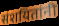
संशयितांनी